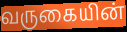
வருகையின்